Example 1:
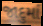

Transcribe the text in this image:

જાદુમાં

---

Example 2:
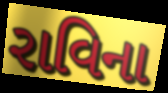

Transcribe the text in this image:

રાવિના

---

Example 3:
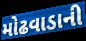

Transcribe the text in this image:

મોઢવાડાની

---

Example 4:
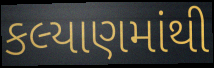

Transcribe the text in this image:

કલ્યાણમાંથી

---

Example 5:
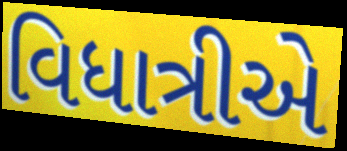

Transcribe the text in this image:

વિધાત્રીએ